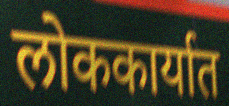
लोककार्यात